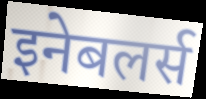
इनेबलर्स